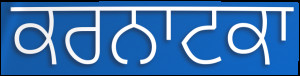
ਕਰਨਾਟਕਾ